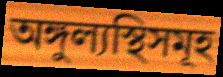
অঙ্গুল্যস্থিসমূহ